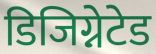
डिजिग्नेटेड